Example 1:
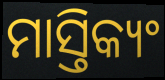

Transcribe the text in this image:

ମାସ୍ତିକ୍ୟଂ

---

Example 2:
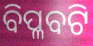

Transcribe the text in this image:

ବିପ୍ଳବଟି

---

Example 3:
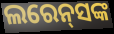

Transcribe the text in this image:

ଲରେନ୍‌ସଙ୍କ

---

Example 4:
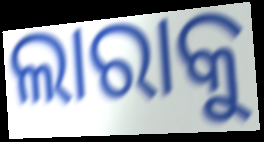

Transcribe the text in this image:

ଲାରାକୁ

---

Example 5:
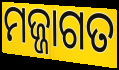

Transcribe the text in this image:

ମଜ୍ଜାଗତ